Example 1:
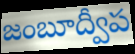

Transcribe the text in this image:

జంబూద్వీప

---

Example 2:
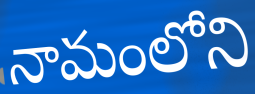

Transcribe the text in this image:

నామంలోని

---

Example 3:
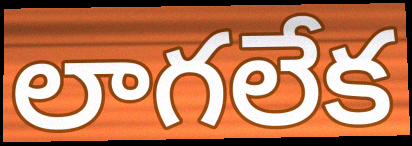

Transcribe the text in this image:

లాగలేక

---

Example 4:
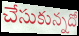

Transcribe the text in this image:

చేసుకున్నదో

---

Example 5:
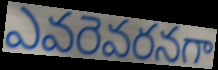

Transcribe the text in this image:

ఎవరెవరనగా